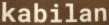
kabilan